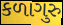
કળાગુરુ